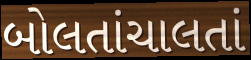
બોલતાંચાલતાં